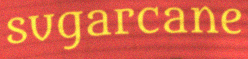
sugarcane